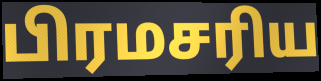
பிரமசரிய